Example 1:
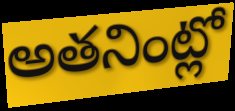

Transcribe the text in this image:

అతనింట్లో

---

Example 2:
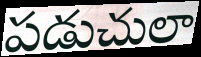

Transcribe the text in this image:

పడుచులా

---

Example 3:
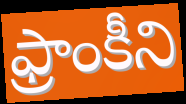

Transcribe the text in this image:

ఫ్రాంకీని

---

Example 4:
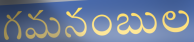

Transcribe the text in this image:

గమనంబుల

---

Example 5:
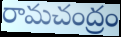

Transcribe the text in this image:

రామచంద్రం